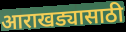
आराखड्यासाठी